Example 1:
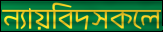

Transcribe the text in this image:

ন্যায়বিদসকলে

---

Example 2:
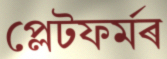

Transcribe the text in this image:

প্লেটফৰ্মৰ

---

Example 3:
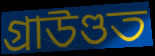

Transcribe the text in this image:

গ্ৰাউণ্ডত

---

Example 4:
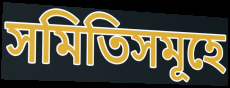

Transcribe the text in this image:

সমিতিসমূহে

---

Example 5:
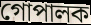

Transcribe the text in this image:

গোপালক